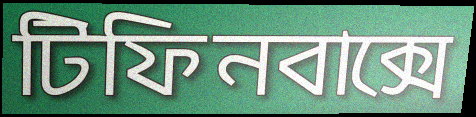
টিফিনবাক্সে